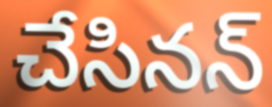
చేసినన్